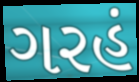
ગરહં